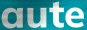
aute